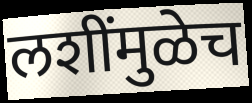
लशींमुळेच